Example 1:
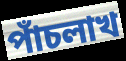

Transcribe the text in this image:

পাঁচলাখ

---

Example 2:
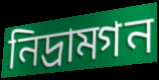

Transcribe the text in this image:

নিদ্রামগন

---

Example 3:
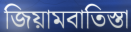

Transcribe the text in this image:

জিয়ামবাতিস্তা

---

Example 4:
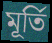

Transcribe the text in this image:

মূর্তি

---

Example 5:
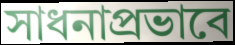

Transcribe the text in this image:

সাধনাপ্রভাবে